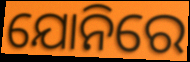
ଯୋନିରେ